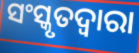
ସଂସ୍କୃତଦ୍ୱାରା